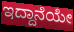
ಇದ್ದಾನೆಯೇ